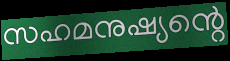
സഹമനുഷ്യന്റെ